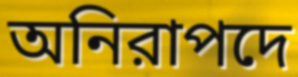
অনিরাপদে